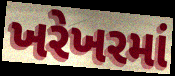
ખરેખરમાં